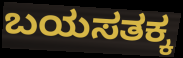
ಬಯಸತಕ್ಕ